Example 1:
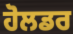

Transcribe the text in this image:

ਹੋਲਡਰ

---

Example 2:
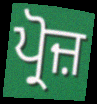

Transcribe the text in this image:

ਪ੍ਰੋਜ਼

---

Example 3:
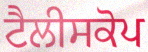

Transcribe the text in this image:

ਟੈਲੀਸਕੋਪ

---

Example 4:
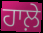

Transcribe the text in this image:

ਹਾਲ਼ੇ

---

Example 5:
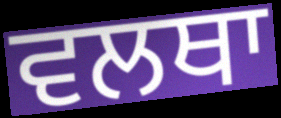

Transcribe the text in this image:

ਵਲਥਾ